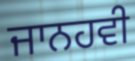
ਜਾਨਹਵੀ